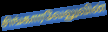
சிங்காரவேலுவின்